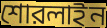
শোরলাইন